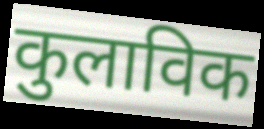
कुलाविक